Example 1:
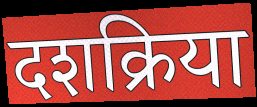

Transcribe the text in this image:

दशक्रिया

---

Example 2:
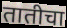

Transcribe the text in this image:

तातीचा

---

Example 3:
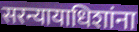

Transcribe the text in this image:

सरन्यायाधिशांना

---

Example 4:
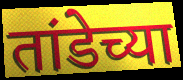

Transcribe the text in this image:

तांडेच्या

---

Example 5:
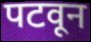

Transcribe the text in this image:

पटवून